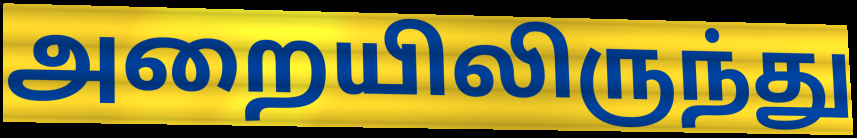
அறையிலிருந்து